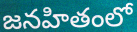
జనహితంలో